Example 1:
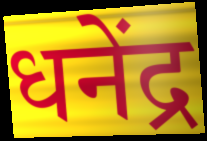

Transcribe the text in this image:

धनेंद्र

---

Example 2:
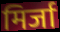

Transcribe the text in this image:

मिर्जा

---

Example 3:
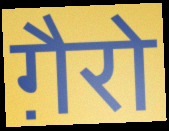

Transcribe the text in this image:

ग़ैरो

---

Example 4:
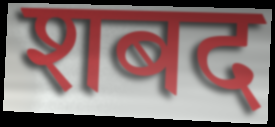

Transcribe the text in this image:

शबद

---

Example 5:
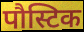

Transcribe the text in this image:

पौस्टिक